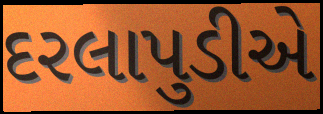
દરલાપુડીએ